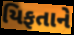
યિફતાને